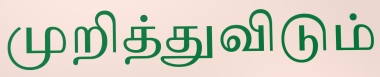
முறித்துவிடும்